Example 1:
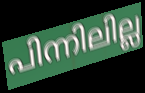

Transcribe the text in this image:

പിന്നിലില്ല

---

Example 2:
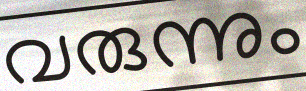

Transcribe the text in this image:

വരുന്നും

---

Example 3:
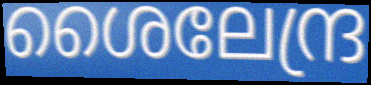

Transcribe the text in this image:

ശൈലേന്ദ്ര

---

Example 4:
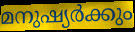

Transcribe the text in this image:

മനുഷ്യർക്കും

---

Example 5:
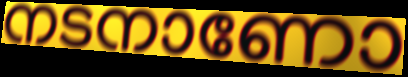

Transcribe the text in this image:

നടനാണോ